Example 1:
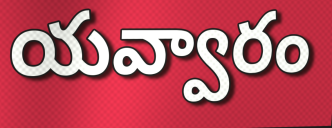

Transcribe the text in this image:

యవ్వారం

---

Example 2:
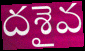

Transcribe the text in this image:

దశైవ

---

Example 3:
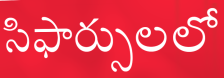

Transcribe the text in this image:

సిఫార్సులలో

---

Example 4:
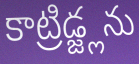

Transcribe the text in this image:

కాట్రిడ్జ్లను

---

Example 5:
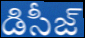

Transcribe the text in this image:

డిసీజ్